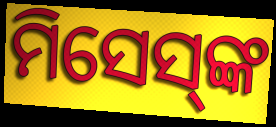
ମିସେସ୍‌ଙ୍କ